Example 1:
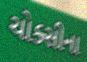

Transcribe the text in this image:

ચોક્સીના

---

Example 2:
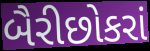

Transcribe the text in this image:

બૈરીછોકરાં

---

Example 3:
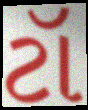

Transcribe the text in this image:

ટૉ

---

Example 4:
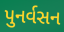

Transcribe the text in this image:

પુનર્વસન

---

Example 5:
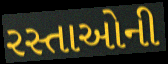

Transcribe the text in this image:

રસ્તાઓની